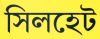
সিলহেট